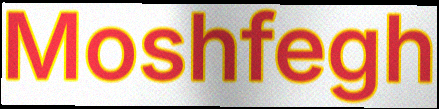
Moshfegh